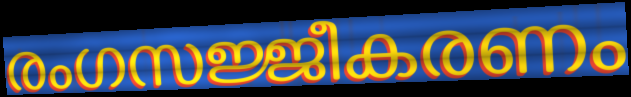
രംഗസജ്ജീകരണം